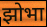
झोभा